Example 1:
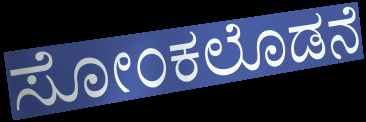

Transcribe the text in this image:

ಸೋಂಕಲೊಡನೆ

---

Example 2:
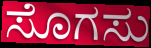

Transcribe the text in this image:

ಸೊಗಸು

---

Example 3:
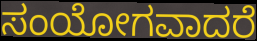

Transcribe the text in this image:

ಸಂಯೋಗವಾದರೆ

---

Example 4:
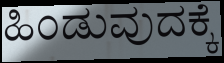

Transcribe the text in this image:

ಹಿಂಡುವುದಕ್ಕೆ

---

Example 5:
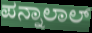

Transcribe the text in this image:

ಪನ್ನಾಲಾಲ್